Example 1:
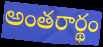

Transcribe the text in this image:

అంతరార్థం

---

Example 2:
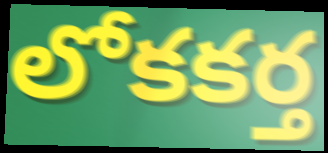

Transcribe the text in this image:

లోకకర్త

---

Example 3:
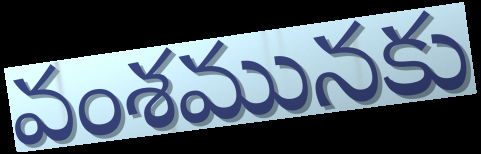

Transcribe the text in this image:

వంశమునకు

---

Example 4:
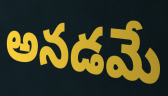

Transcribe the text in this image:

అనడమే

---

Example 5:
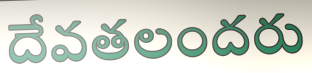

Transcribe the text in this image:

దేవతలందరు